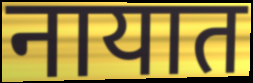
नायात